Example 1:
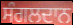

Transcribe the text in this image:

ਸੰਗਲਦਾਨ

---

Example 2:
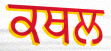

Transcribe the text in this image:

ਕਥਲ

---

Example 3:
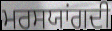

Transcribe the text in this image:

ਮਰਸਯਾਂਗਦੀ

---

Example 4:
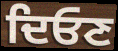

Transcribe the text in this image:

ਦਿਓਣ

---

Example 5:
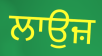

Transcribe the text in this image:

ਲਾਉਜ਼